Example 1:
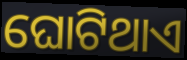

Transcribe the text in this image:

ଘୋଟିଥାଏ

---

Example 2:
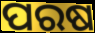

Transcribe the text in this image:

ପରଷ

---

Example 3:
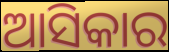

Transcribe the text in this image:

ଆସିକାର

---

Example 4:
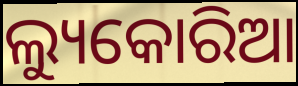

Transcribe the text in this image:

ଲ୍ୟୁକୋରିଆ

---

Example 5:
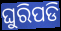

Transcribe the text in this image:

ଘୁରିପଡି